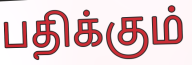
பதிக்கும்